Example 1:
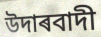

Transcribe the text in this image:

উদাৰবাদী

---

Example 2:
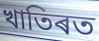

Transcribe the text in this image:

খাতিৰত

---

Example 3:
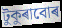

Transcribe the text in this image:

টুকুৰাবোৰ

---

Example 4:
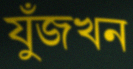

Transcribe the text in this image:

যুঁজখন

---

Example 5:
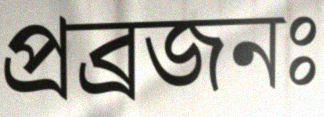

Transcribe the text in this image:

প্ৰব্ৰজনঃ